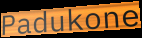
Padukone